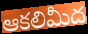
ఆకలిమీద